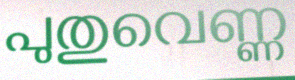
പുതുവെണ്ണ